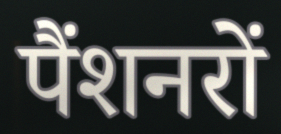
पैंशनरों